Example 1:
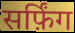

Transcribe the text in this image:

सर्फ़िंग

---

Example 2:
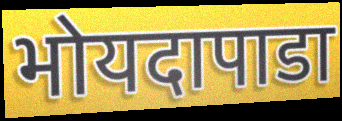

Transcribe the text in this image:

भोयदापाडा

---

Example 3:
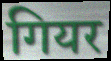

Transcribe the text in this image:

गियर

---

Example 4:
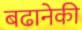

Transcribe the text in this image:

बढानेकी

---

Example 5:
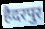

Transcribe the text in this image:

हैदरपुर